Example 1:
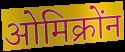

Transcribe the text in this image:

ओमिक्रोंन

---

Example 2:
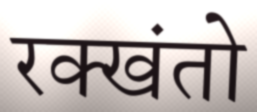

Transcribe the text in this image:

रक्खंतो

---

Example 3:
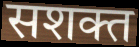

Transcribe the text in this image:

सशक्‍त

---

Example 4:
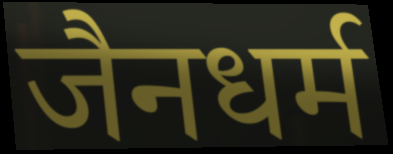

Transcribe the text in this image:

जैनधर्म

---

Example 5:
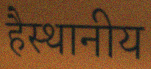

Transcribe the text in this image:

हैस्थानीय